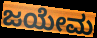
ಜಯೇಮ